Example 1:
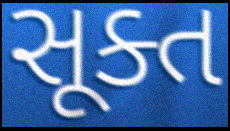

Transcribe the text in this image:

સૂક્ત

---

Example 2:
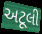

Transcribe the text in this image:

અટૂલી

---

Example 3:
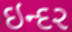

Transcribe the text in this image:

ઇન્દર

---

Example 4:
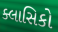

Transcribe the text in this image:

ક્લાસિકો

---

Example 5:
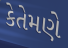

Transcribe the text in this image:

કેતેમણે